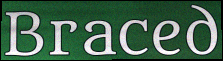
Braced